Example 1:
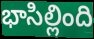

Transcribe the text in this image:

భాసిల్లింది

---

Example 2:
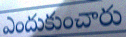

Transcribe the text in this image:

ఎందుకుంచారు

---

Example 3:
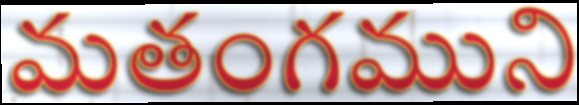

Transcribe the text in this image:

మతంగముని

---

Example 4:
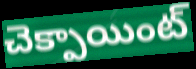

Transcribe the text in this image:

చెక్పాయింట్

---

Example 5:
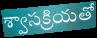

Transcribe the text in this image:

శ్వాసక్రియతో